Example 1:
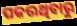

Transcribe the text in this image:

ପକଉଥିବାରୁ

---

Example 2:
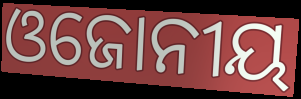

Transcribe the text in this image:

ଓଜୋନୀୟ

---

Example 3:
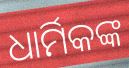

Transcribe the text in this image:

ଧାର୍ମିକଙ୍କ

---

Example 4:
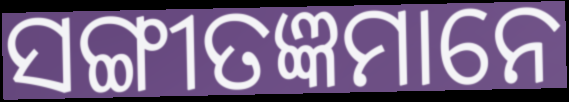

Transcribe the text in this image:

ସଙ୍ଗୀତଜ୍ଞମାନେ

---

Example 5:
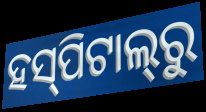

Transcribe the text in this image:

ହସ୍‌ପିଟାଲ୍‌ରୁ